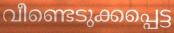
വീണ്ടെടുക്കപ്പെട്ട